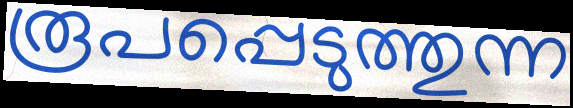
രൂപപ്പെടുത്തുന്ന